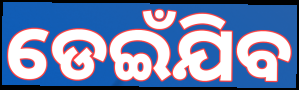
ଡେଇଁଯିବ